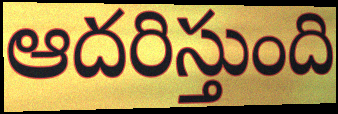
ఆదరిస్తుంది